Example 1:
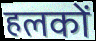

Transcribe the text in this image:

हलकों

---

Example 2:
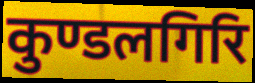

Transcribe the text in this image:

कुण्डलगिरि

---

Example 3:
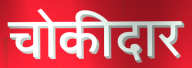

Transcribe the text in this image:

चोकीदार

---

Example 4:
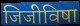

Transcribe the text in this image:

जिजीविषा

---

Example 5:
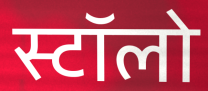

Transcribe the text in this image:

स्टॉलो